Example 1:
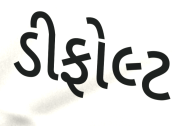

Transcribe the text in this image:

ડીફોલ્ટ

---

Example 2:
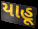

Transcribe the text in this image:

યાહૂ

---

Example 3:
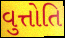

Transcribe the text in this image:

વુત્તોતિ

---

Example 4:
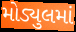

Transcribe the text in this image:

મોડ્યુલમાં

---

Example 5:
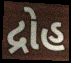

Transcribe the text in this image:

દ્રોહ